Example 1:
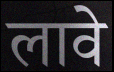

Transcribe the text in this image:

लावे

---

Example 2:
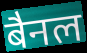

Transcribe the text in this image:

बैनल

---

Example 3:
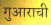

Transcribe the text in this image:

गुआराची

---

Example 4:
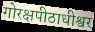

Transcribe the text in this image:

गोरक्षपीठाधीश्वर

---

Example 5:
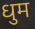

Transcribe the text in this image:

धुम